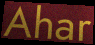
Ahar